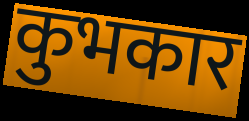
कुभकार